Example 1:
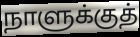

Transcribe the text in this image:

நாளுக்குத்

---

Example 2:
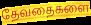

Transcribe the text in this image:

தேவதைகளை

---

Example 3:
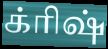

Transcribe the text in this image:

க்ரிஷ்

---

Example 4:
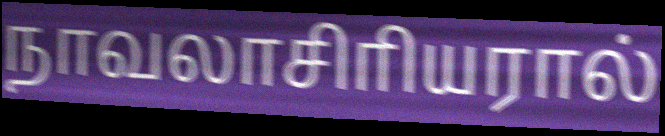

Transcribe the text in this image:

நாவலாசிரியரால்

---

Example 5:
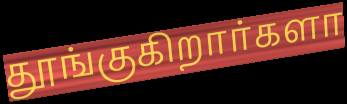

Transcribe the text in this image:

தூங்குகிறார்களா